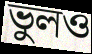
ভুলও